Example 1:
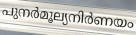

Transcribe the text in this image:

പുനർമൂല്യനിർണയം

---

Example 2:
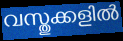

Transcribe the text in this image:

വസ്തുക്കളിൽ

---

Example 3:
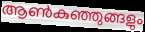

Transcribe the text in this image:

ആൺകുഞ്ഞുങ്ങളും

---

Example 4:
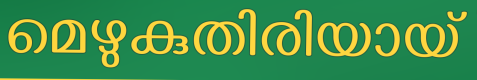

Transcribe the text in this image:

മെഴുകുതിരിയായ്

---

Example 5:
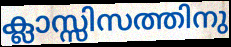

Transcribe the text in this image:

ക്ലാസ്സിസത്തിനു